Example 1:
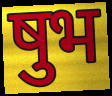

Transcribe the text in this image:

षुभ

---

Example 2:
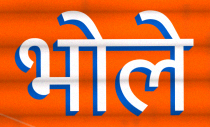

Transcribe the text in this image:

भोले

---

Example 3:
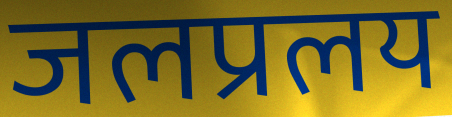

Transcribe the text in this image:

जलप्रलय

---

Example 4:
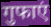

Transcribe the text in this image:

गुफाएं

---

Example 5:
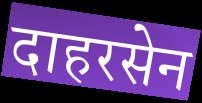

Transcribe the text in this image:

दाहरसेन